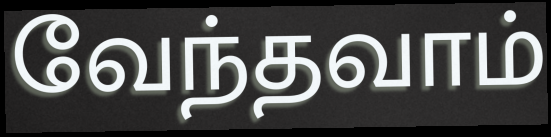
வேந்தவாம்